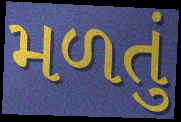
મળતું